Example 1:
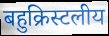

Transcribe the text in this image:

बहुक्रिस्टलीय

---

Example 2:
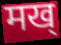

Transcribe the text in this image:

मख्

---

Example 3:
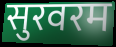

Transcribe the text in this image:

सुरवरम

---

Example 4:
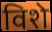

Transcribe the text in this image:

विशे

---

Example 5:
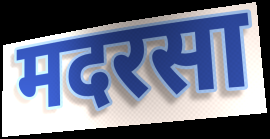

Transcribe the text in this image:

मदरसा